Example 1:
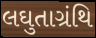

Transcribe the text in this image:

લઘુતાગ્રંથિ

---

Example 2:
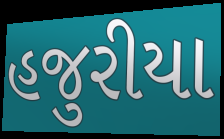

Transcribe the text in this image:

હજુરીયા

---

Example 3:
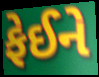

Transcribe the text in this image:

ફેઈને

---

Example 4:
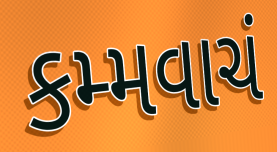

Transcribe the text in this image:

કમ્મવાચં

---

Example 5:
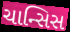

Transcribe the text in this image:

ચાન્સિસ